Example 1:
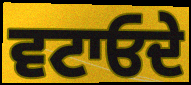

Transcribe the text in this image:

ਵਟਾਓਦੇ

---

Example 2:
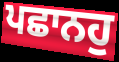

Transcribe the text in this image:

ਪਛਾਨਹੁ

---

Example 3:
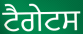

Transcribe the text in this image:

ਟੈਗੇਟਸ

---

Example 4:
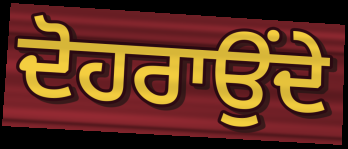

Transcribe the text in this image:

ਦੋਹਰਾਉਂਦੇ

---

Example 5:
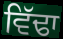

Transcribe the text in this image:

ਵਿੱਢਾ